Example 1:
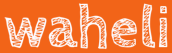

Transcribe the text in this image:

waheli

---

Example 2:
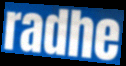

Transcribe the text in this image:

radhe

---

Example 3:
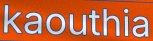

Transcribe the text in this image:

kaouthia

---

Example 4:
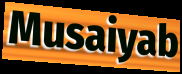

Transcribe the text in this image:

Musaiyab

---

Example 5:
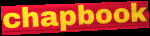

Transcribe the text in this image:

chapbook